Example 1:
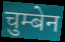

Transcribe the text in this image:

चुम्बेन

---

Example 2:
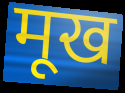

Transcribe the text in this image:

मूख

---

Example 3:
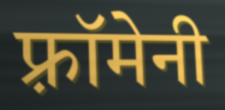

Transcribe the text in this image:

फ़्रॉमेनी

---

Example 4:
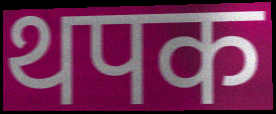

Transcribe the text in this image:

थपक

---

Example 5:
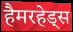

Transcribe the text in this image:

हैमरहेड्स